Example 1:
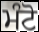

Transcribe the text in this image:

ਮੰਟੋ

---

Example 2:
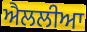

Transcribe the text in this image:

ਐਲਲੀਆ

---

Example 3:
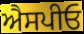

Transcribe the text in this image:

ਐਸਪੀਓ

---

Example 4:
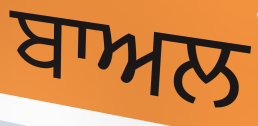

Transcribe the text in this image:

ਬਾਅਲ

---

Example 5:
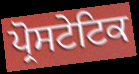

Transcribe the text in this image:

ਪ੍ਰੋਸਟੇਟਿਕ